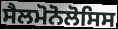
ਸੈਲਮੋਨੋਲੋਸਿਸ